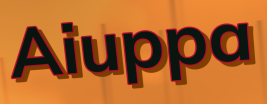
Aiuppa